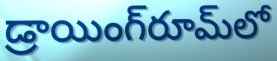
డ్రాయింగ్‌రూమ్‌లో